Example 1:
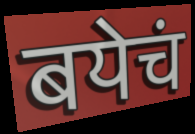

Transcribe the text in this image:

बयेचं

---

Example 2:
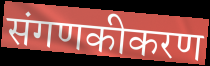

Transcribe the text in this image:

संगणकीकरण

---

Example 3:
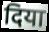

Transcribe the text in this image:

दिया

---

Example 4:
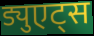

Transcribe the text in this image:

ड्युएट्स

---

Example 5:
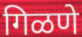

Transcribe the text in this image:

गिळणे